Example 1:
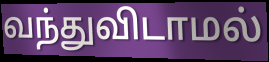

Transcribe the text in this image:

வந்துவிடாமல்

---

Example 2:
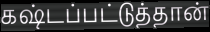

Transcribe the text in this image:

கஷ்டப்பட்டுத்தான்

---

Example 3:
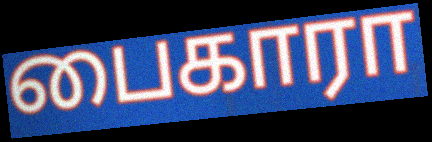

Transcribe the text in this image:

பைகாரா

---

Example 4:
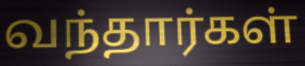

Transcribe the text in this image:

வந்தார்கள்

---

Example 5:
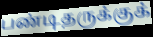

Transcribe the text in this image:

பண்டிதருக்குக்